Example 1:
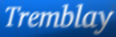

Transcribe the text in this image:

Tremblay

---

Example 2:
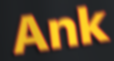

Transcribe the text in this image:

Ank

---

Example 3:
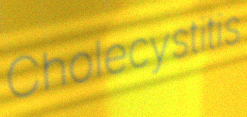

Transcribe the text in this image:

Cholecystitis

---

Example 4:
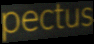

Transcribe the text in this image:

pectus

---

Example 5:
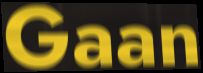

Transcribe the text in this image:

Gaan